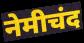
नेमीचंद